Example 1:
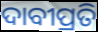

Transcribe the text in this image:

ଦାବୀପ୍ରତି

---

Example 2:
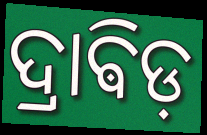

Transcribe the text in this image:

ଦ୍ରାଵିଡ଼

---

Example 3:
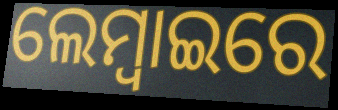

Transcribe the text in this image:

ଲେମ୍ବାଇରେ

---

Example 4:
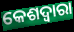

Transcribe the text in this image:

କେଶଦ୍ବାରା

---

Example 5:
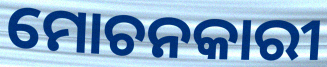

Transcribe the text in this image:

ମୋଚନକାରୀ